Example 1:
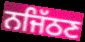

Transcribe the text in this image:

ਨਜਿੱਠਣ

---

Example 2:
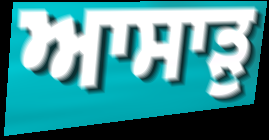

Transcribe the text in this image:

ਆਸਾੜੁ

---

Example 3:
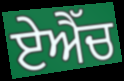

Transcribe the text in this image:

ਏਐੱਚ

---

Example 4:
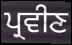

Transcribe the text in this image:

ਪ੍ਰਵੀਣ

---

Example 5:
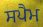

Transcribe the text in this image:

ਸਪੈਮ